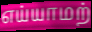
எய்யாமற்